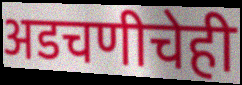
अडचणीचेही